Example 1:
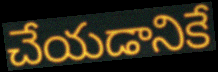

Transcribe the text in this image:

చేయడానికే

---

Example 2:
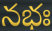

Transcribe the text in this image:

నభః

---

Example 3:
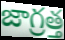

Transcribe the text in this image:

జాగ్రత్త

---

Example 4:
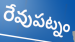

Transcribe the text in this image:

రేవుపట్నం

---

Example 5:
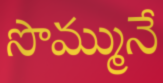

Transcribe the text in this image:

సొమ్మునే